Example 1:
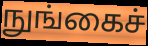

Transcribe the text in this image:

நுங்கைச்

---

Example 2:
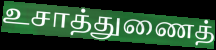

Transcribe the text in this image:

உசாத்துணைத்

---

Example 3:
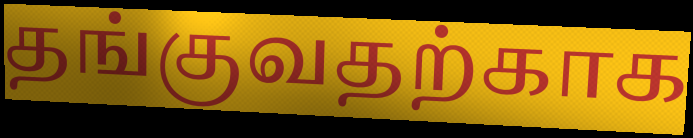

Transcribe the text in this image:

தங்குவதற்காக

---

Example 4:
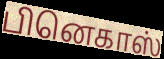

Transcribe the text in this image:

பினெகாஸ்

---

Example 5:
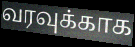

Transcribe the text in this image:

வரவுக்காக